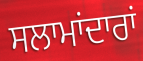
ਸਲਾਮਾਂਦਾਰਾਂ